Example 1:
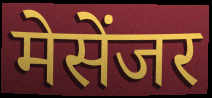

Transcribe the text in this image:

मेसेंजर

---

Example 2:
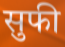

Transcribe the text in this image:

सुफी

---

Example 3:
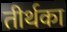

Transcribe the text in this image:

तीर्थका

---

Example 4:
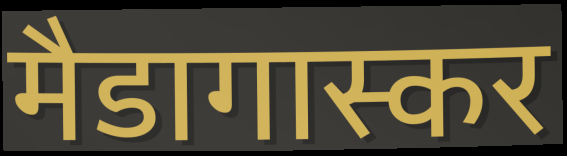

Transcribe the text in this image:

मैडागास्कर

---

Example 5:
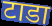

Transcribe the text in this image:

टाडा